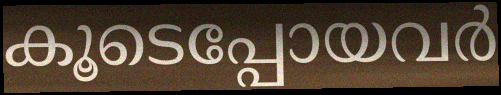
കൂടെപ്പോയവർ